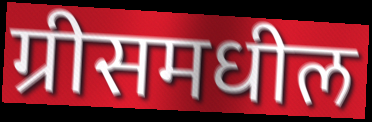
ग्रीसमधील